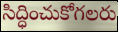
సిద్ధించుకోగలరు